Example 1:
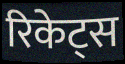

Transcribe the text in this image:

रिकेट्स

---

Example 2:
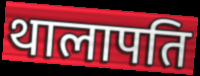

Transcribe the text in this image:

थालापति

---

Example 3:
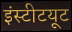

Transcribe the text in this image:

इंस्टीटयूट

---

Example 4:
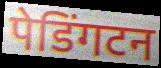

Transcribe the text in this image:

पेडिंगटन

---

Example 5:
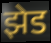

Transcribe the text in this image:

झेड